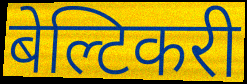
बेल्टिकरी